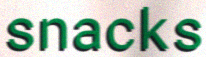
snacks